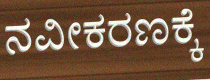
ನವೀಕರಣಕ್ಕೆ